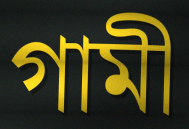
গামী